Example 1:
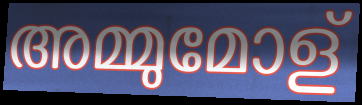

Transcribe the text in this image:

അമ്മുമോള്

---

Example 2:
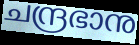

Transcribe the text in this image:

ചന്ദ്രഭാനു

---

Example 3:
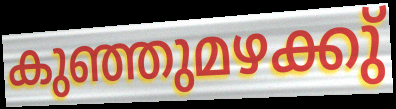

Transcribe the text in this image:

കുഞ്ഞുമഴക്കു്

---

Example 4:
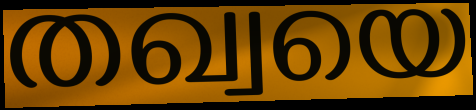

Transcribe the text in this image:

തഖ്വയെ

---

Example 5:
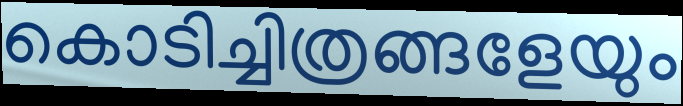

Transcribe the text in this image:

കൊടിച്ചിത്രങ്ങളേയും